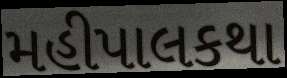
મહીપાલકથા